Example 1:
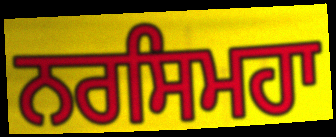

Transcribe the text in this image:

ਨਰਸਿਮਹਾ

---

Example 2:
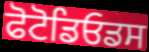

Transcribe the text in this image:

ਫੋਟੋਡਿਓਡਸ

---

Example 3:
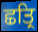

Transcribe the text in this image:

ਛਤ੍ਰਿ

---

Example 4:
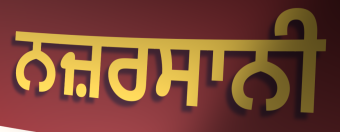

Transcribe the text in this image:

ਨਜ਼ਰਸਾਨੀ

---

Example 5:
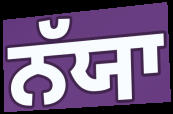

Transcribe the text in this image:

ਨੱਯਾ